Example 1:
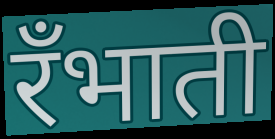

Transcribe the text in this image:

रँभाती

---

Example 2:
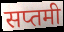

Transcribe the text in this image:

सप्तमी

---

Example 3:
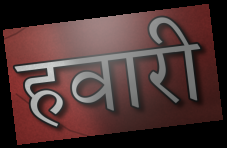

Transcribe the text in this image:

हवारी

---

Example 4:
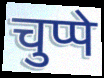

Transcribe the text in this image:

चुप्पे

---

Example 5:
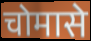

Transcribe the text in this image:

चोमासे